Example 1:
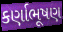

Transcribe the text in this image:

કર્ણાભૂષણ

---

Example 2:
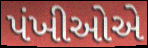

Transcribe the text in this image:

પંખીઓએ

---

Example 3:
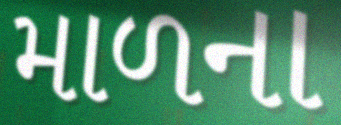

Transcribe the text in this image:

માળના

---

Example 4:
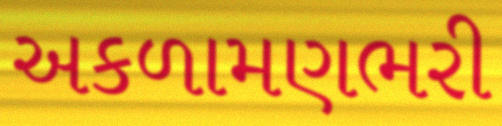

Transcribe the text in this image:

અકળામણભરી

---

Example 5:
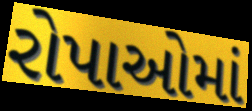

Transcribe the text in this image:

રોપાઓમાં